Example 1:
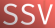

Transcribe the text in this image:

SSV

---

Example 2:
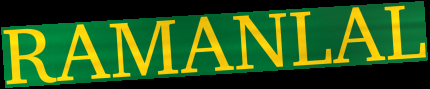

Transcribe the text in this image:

RAMANLAL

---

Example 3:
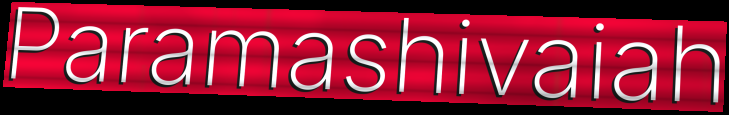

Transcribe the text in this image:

Paramashivaiah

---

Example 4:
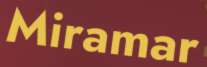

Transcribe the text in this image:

Miramar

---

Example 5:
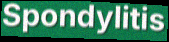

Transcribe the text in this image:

Spondylitis